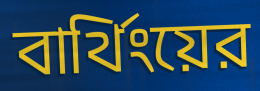
বার্থিংয়ের